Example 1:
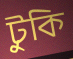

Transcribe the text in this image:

টুকি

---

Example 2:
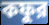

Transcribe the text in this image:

কফুর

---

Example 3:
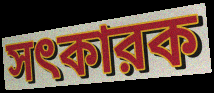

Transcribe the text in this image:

সৎকারক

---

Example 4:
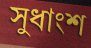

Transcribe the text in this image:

সুধাংশ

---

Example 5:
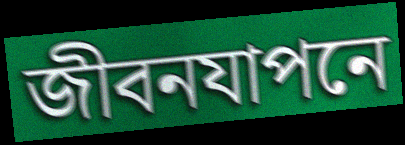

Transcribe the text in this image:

জীবনযাপনে